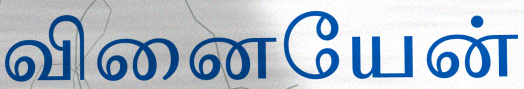
வினையேன்